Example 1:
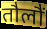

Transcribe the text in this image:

तौलौं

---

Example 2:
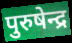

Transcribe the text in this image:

पुरुषेन्द्र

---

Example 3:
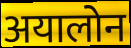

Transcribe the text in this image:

अयालोन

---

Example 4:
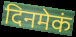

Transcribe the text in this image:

दिनमेकं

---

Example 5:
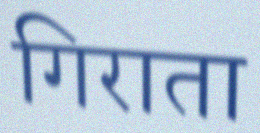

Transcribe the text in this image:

गिराता